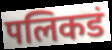
पलिकडं